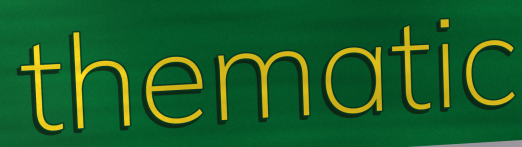
thematic